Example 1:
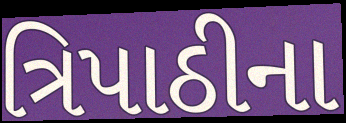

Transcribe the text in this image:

ત્રિપાઠીના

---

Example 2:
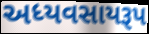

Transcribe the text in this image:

અધ્યવસાયરૂપ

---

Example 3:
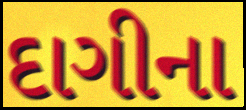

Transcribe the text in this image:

દાગીના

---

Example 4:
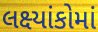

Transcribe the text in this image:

લક્ષ્યાંકોમાં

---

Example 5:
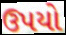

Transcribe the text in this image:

ઉપયો